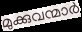
മുക്കുവന്മാർ